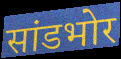
सांडभोर